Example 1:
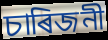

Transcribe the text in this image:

চাৰিজনী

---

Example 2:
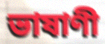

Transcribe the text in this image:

ভাষাণী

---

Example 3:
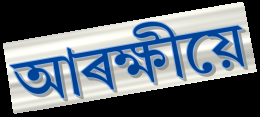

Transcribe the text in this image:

আৰক্ষীয়ে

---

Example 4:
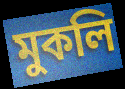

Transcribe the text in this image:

মুকলি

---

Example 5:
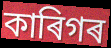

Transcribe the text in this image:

কাৰিগৰ